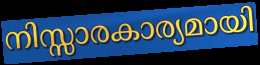
നിസ്സാരകാര്യമായി